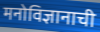
मनोविज्ञानाची